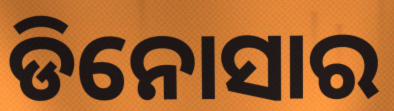
ଡିନୋସାର